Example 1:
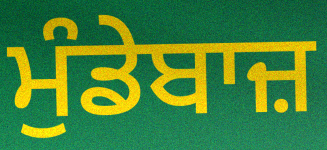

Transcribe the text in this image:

ਮੁੰਡੇਬਾਜ਼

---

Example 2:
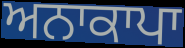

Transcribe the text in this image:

ਅਨਾਕਾਪਾ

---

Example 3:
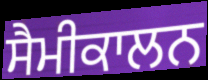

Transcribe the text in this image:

ਸੈਮੀਕਾਲਨ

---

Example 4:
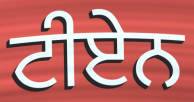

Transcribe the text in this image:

ਟੀਏਨ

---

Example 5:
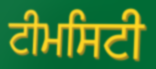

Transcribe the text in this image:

ਟੀਮਸਿਟੀ